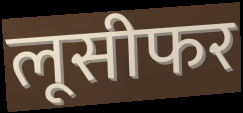
लूसीफर